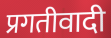
प्रगतीवादी